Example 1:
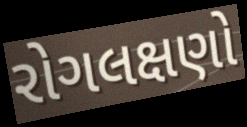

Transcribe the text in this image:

રોગલક્ષણો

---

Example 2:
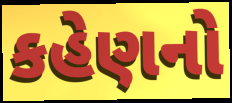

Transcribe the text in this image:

કહેણનો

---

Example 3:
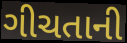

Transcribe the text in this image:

ગીચતાની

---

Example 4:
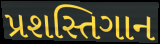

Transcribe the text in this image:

પ્રશસ્તિગાન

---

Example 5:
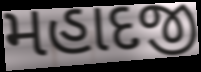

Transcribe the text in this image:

મહાદજી